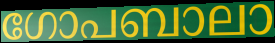
ഗോപബാലാ